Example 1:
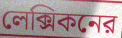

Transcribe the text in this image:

লেক্সিকনের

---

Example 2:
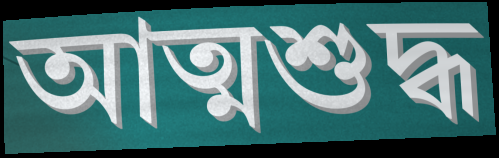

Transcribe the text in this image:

আত্মশুদ্ধ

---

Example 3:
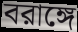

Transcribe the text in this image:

বরাঙ্গে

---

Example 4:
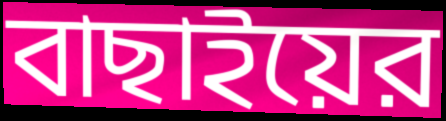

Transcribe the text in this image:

বাছাইয়ের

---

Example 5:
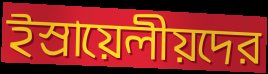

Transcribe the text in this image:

ইস্রায়েলীয়দের